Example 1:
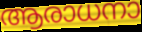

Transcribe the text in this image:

ആരാധനാ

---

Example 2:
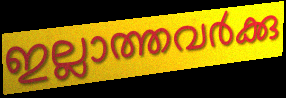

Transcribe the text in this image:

ഇല്ലാത്തവർക്കു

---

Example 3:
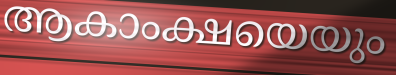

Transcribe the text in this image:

ആകാംക്ഷയെയും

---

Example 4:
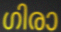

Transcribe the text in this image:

ഗിരാ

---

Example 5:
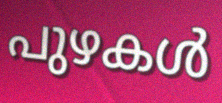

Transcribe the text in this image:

പുഴകൾ